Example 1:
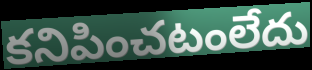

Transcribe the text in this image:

కనిపించటంలేదు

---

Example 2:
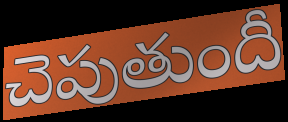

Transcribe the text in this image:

చెపుతుందీ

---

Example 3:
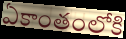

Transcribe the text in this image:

ఏకాంతంలోకి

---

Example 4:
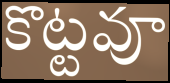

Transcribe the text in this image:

కొట్టవూ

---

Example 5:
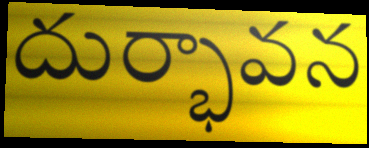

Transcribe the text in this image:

దుర్భావన